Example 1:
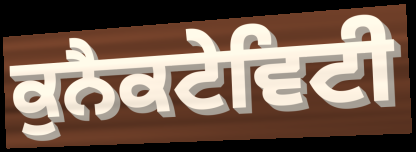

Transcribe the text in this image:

ਕੁਨੈਕਟੇਵਿਟੀ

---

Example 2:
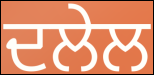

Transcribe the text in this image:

ਦਲੇਲ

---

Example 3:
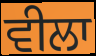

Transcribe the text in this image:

ਵੀਲਾ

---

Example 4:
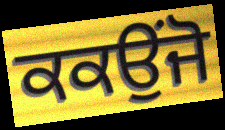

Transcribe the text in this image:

ਕਕਉਂਜੋ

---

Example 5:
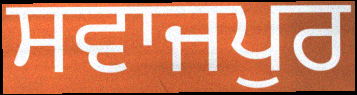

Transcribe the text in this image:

ਸਵਾਜਪੁਰ